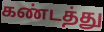
கண்டத்து